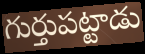
గుర్తుపట్టాడు